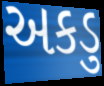
અકડુ